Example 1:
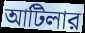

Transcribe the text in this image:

আটিলার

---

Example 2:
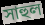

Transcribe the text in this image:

সাহুল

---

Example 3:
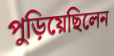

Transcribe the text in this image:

পুড়িয়েছিলেন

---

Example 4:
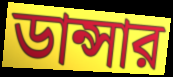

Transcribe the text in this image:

ডান্সার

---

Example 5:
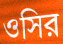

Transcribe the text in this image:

ওসির